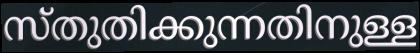
സ്തുതിക്കുന്നതിനുള്ള